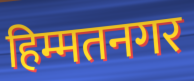
हिम्‍मतनगर